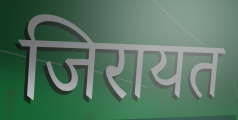
जिरायत